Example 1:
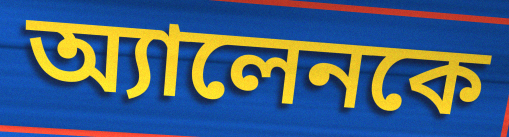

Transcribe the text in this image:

অ্যালেনকে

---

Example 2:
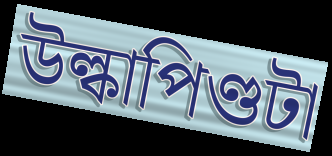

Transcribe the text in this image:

উল্কাপিণ্ডটা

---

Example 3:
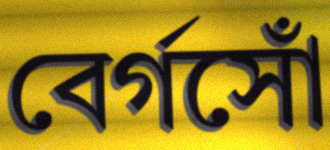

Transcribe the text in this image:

বের্গসোঁ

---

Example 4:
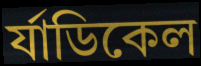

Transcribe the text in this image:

র্যাডিকেল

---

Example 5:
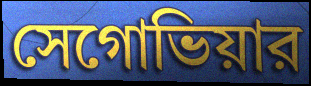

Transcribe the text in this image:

সেগোভিয়ার